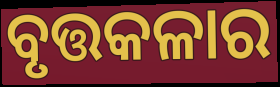
ବୃତ୍ତକଳାର